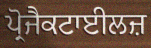
ਪ੍ਰੋਜੈਕਟਾਈਲਜ਼